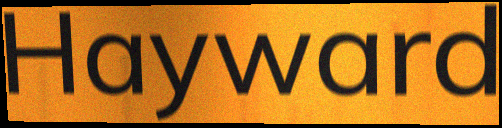
Hayward